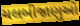
ચલબીજાણુઓ